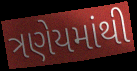
ત્રણેયમાંથી